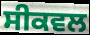
ਸੀਕਵਲ